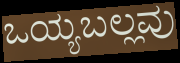
ಒಯ್ಯಬಲ್ಲವು